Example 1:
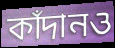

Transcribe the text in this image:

কাঁদানও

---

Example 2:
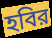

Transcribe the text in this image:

হবির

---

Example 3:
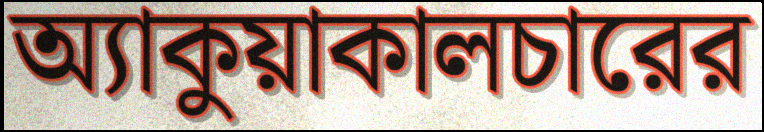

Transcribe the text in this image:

অ্যাকুয়াকালচারের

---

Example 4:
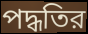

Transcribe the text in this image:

পদ্ধতির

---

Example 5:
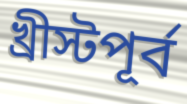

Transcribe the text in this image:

খ্রীস্টপূর্ব